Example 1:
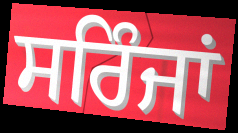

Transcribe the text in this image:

ਸਰਿੰਜਾਂ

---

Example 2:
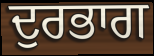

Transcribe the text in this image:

ਦੁਰਭਾਗ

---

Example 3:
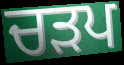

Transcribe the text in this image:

ਚੜਪ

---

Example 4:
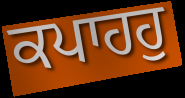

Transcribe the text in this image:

ਕਪਾਹਹੁ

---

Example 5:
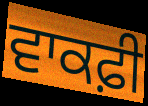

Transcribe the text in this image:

ਵਾਕਫ਼ੀ